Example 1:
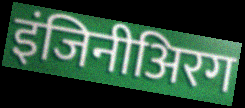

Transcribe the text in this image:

इंजिनीअिरग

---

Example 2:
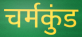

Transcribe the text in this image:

चर्मकुंड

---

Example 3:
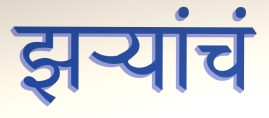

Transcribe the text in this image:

झर्‍यांचं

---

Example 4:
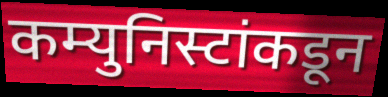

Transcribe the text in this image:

कम्युनिस्टांकडून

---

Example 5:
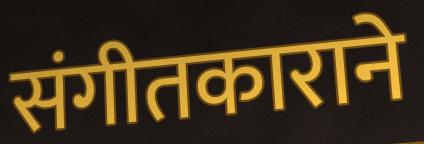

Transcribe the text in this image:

संगीतकाराने